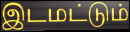
இடமட்டும்